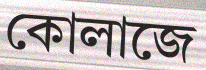
কোলাজে